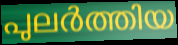
പുലർത്തിയ